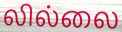
லில்லை